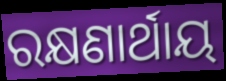
ରକ୍ଷଣାର୍ଥାୟ